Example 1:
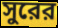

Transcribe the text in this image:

সুরের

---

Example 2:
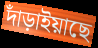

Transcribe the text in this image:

দাঁড়াইয়াছে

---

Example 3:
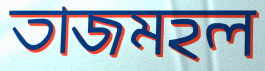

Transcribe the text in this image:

তাজমহল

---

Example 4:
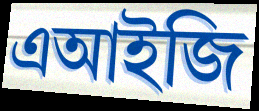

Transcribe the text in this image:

এআইজি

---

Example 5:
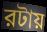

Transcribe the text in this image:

রটায়